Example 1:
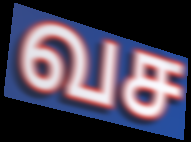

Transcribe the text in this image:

வச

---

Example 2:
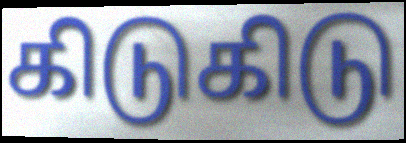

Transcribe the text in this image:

கிடுகிடு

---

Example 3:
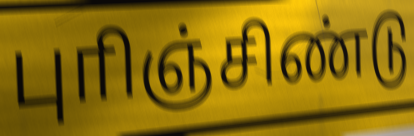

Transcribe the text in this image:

புரிஞ்சிண்டு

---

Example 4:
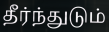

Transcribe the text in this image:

தீர்ந்துடும்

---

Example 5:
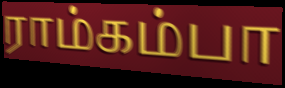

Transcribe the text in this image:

ராம்கம்பா